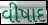
વીષાદ